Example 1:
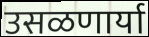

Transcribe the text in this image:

उसळणार्या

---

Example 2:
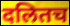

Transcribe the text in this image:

दलितच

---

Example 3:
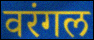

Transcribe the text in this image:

वरंगल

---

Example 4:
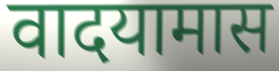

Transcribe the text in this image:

वादयामास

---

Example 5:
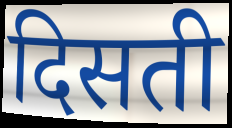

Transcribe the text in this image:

दिसती